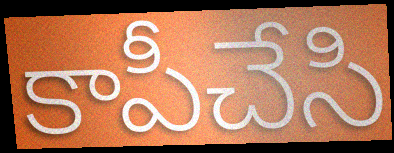
కాపీచేసి